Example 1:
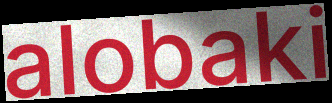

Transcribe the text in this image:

alobaki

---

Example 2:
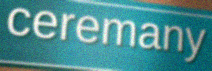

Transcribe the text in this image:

ceremany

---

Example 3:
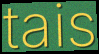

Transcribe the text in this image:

tais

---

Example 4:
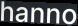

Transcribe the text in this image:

hanno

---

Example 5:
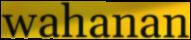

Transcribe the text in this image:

wahanan